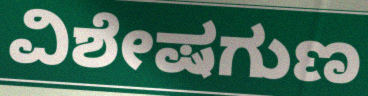
ವಿಶೇಷಗುಣ